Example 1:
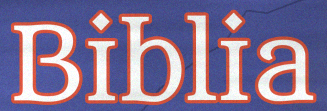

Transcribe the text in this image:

Biblia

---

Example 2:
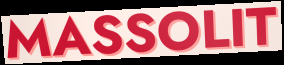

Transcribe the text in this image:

MASSOLIT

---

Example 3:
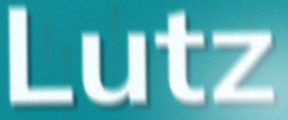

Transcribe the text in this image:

Lutz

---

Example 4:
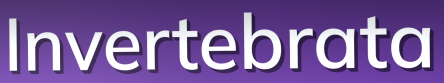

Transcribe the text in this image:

Invertebrata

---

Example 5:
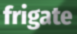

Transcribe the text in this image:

frigate